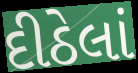
દીઠેલાં